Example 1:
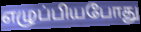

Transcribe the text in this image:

எழுப்பியபோது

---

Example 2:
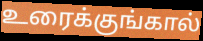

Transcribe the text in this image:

உரைக்குங்கால்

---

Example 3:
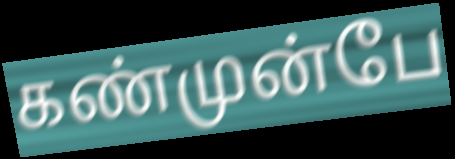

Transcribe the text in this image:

கண்முன்பே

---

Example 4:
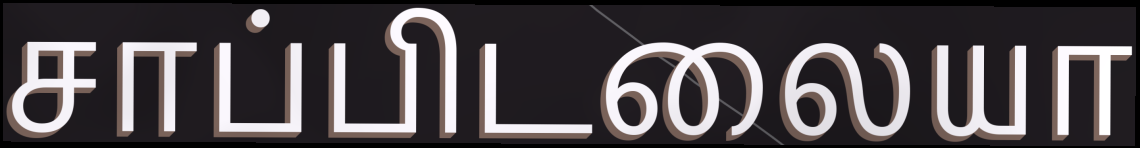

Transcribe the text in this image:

சாப்பிடலையா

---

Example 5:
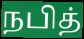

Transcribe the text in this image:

நபித்